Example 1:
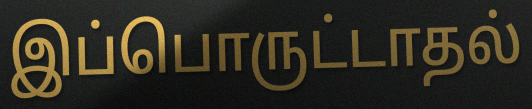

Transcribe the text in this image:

இப்பொருட்டாதல்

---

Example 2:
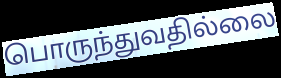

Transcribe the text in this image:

பொருந்துவதில்லை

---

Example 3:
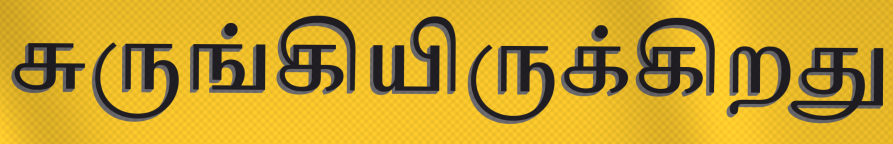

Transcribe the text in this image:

சுருங்கியிருக்கிறது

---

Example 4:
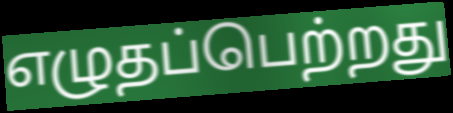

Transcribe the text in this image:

எழுதப்பெற்றது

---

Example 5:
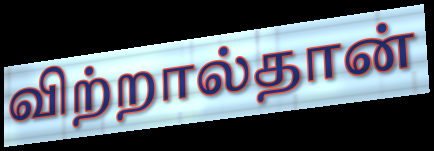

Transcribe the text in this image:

விற்றால்தான்